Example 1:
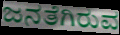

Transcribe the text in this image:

ಜನತೆಗಿರುವ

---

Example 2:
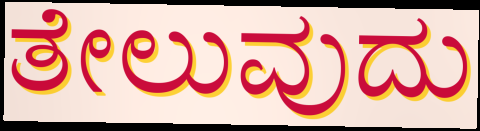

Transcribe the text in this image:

ತೇಲುವುದು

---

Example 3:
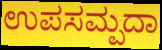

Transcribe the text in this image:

ಉಪಸಮ್ಪದಾ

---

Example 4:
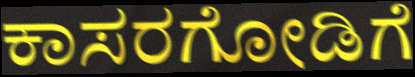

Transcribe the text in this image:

ಕಾಸರಗೋಡಿಗೆ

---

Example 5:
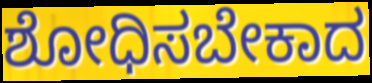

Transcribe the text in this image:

ಶೋಧಿಸಬೇಕಾದ